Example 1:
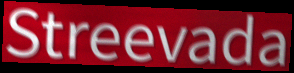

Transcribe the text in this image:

Streevada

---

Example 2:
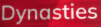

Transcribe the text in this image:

Dynasties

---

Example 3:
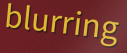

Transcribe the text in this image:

blurring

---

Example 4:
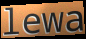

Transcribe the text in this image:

lewa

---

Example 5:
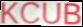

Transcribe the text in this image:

KCUB